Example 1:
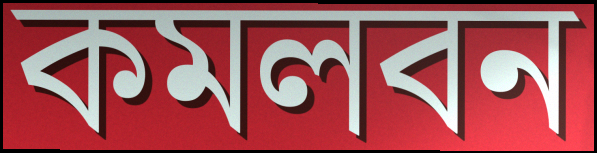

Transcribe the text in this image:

কমলবন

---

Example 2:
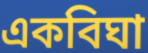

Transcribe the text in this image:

একবিঘা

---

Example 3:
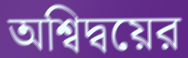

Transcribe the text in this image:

অশ্বিদ্বয়ের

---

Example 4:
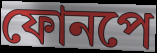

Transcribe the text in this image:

ফোনপে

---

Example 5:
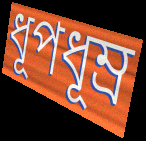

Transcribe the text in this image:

ধূপধূম্র